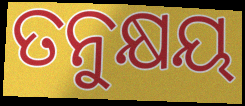
ତନୁକ୍ଷୟ